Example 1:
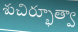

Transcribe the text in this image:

శుచిర్భూత్వా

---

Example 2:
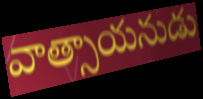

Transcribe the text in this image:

వాత్సాయనుడు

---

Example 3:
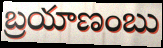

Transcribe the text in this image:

బ్రయాణంబు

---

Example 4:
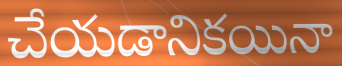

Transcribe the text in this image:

చేయడానికయినా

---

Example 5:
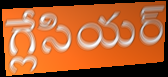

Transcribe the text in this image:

గ్లేసియర్